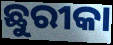
ଛୁରୀକା